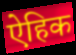
ऐहिक